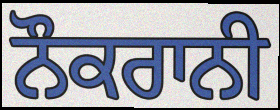
ਨੌਕਰਾਨੀ